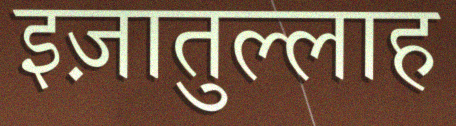
इज़ातुल्लाह